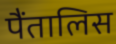
पैंतालिस